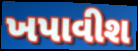
ખપાવીશ